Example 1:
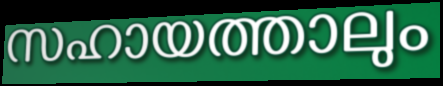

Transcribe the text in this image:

സഹായത്താലും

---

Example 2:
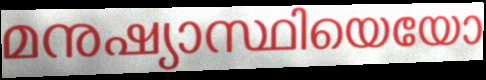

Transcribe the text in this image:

മനുഷ്യാസ്ഥിയെയോ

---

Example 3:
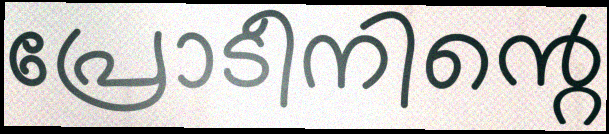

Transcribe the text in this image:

പ്രോടീനിന്റെ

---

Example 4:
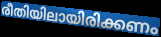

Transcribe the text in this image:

രീതിയിലായിരിക്കണം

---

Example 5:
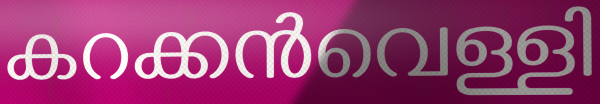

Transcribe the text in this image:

കറക്കൻവെള്ളി